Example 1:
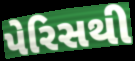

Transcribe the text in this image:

પેરિસથી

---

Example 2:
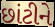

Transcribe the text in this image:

છાંટીને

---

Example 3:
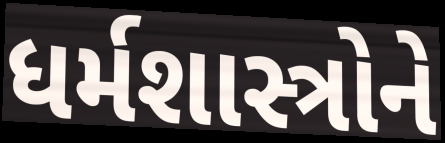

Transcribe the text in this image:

ધર્મશાસ્ત્રોને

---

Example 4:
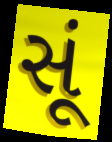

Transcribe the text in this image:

સૂં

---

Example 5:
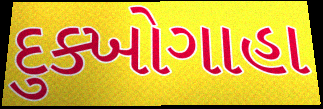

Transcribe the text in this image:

દુક્ખોગાહા